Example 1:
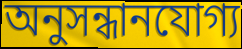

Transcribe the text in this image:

অনুসন্ধানযোগ্য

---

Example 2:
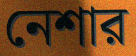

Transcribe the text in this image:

নেশার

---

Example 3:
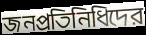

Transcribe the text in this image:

জনপ্রতিনিধিদের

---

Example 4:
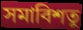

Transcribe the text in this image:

সমাবিশতু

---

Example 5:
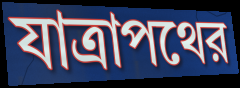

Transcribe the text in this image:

যাত্রাপথের